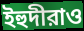
ইহুদীরাও